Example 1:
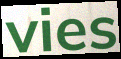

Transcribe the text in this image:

vies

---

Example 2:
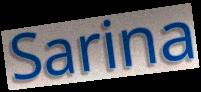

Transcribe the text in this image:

Sarina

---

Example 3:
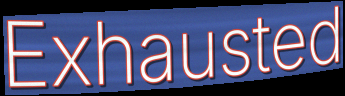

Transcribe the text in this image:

Exhausted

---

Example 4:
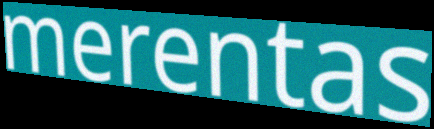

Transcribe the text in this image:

merentas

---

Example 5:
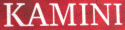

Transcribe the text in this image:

KAMINI